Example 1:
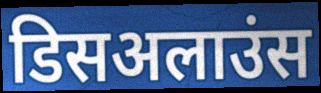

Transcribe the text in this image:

डिसअलाउंस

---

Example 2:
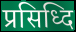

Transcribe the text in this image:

प्रसिध्दि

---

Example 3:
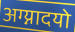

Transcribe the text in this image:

अग्न्यादयो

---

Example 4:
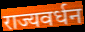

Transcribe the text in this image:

राज्यवर्धन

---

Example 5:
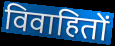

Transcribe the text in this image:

विवाहितों